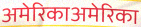
अमेरिकाअमेरिका